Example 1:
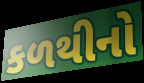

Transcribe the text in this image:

કળથીનો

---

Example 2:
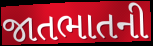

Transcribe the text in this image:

જાતભાતની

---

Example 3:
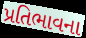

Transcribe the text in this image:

પ્રતિભાવના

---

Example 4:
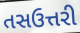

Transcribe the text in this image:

તસઉત્તરી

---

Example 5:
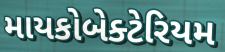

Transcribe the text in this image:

માયકોબેક્ટેરિયમ